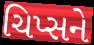
ચિપ્સને